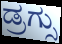
ಡ್ರಗ್ಸು